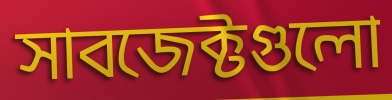
সাবজেক্টগুলো